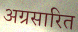
अग्रसारित